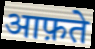
आफ़ते